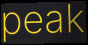
peak